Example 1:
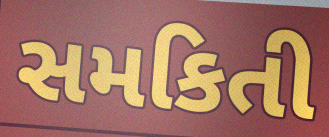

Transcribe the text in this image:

સમકિતી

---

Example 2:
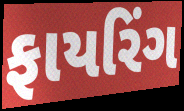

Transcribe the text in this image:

ફાયરિંગ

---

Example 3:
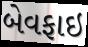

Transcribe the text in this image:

બેવફાઇ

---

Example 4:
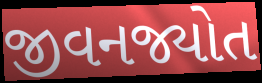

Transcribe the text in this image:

જીવનજ્યોત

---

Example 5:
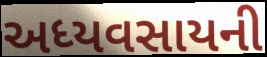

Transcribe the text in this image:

અધ્યવસાયની